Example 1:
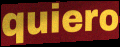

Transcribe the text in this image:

quiero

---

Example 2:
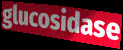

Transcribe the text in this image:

glucosidase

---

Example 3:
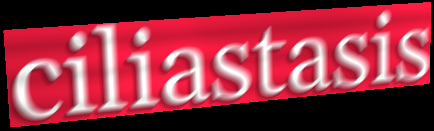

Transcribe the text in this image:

ciliastasis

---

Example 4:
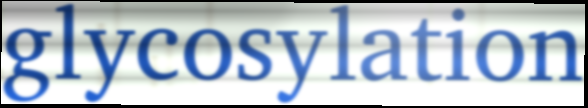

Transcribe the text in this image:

glycosylation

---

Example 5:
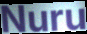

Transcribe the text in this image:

Nuru